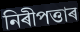
নিৰীপত্তাৰ